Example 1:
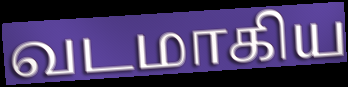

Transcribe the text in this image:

வடமாகிய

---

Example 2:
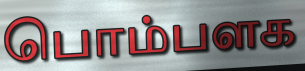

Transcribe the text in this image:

பொம்பளக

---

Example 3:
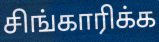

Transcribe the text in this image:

சிங்காரிக்க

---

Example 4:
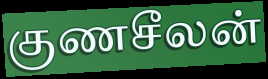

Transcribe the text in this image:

குணசீலன்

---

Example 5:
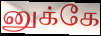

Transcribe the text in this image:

னுக்கே